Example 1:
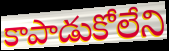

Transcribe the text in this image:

కాపాడుకోలేని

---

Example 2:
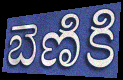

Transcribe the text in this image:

బెణికి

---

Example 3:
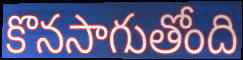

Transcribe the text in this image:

కొనసాగుతోంది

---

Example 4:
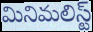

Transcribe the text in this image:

మినిమలిస్ట్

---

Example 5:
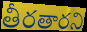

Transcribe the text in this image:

తీరతారని